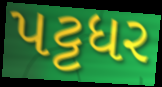
પટ્ટધર